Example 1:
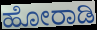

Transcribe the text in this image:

ಹೋರಾಡಿ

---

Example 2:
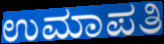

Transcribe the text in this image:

ಉಮಾಪತಿ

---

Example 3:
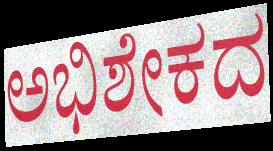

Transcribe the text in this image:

ಅಭಿಶೇಕದ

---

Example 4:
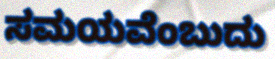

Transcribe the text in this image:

ಸಮಯವೆಂಬುದು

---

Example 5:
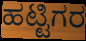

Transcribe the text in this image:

ಹಟ್ಟಿಗರ